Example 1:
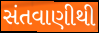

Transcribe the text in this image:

સંતવાણીથી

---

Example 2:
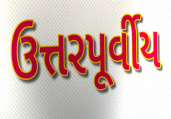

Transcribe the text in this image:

ઉત્તરપૂર્વીય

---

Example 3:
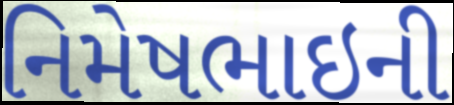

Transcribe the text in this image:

નિમેષભાઇની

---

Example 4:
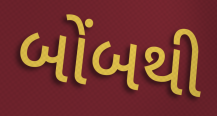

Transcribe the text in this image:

બોંબથી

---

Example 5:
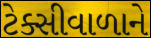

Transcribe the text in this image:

ટેક્સીવાળાને